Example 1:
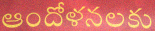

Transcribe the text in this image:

ఆందోళనలకు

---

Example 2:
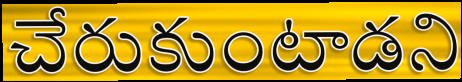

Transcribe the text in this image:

చేరుకుంటాడని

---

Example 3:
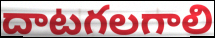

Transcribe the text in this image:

దాటగలగాలి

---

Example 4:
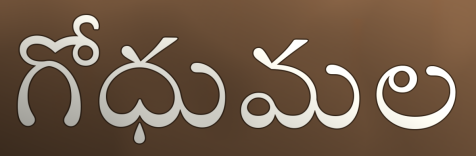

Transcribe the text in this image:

గోధుమల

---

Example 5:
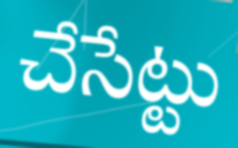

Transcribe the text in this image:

చేసేట్టు